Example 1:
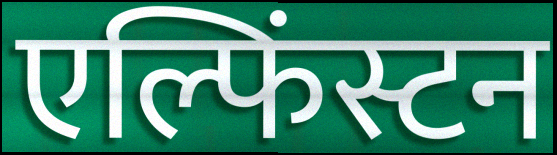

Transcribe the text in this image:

एल्फिंस्टन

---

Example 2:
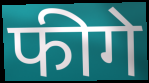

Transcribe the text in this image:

फीगे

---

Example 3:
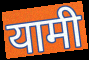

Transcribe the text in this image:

यामी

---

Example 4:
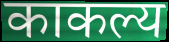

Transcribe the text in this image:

काकल्य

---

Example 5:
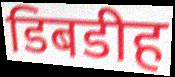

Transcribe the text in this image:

डिबडीह